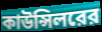
কাউন্সিলরের